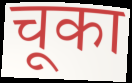
चूका